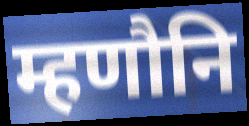
म्हणौनि